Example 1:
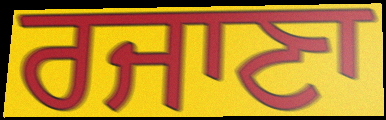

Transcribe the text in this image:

ਰਜਾਣਾ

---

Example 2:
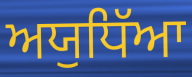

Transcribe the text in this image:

ਅਯੁਧਿੱਆ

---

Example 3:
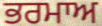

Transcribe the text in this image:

ਭਰਮਾਅ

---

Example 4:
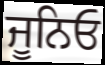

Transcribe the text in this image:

ਜੂਨਿਓ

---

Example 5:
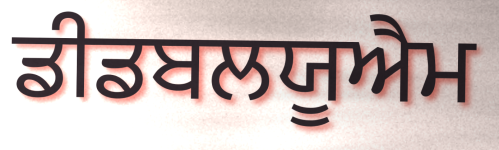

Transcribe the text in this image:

ਡੀਡਬਲਯੂਐਮ